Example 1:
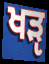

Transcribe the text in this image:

ਖੜੵ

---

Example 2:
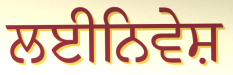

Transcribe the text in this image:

ਲਈਨਿਵੇਸ਼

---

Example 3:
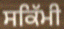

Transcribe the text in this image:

ਸਕਿੱਮੀ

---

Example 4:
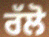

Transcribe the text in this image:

ਰੱਲੋ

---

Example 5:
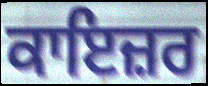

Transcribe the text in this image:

ਕਾਇਜ਼ਰ